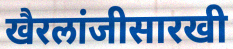
खैरलांजीसारखी